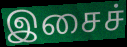
இசைச்